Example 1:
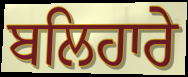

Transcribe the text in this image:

ਬਲਿਹਾਰੇ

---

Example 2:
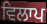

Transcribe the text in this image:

ਵਿਲਾਪ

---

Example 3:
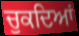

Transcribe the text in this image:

ਚੁਕਦਿਆਂ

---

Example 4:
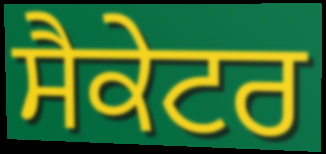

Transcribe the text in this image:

ਸੈਕੇਟਰ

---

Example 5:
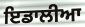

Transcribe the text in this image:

ਇਡਾਲੀਆ